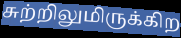
சுற்றிலுமிருக்கிற